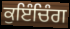
ਕੁਇੰਚਿੰਗ